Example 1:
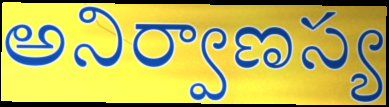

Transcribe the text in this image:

అనిర్వాణస్య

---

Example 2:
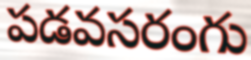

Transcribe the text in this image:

పడవసరంగు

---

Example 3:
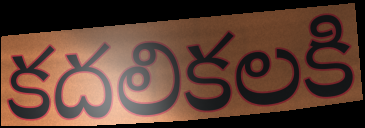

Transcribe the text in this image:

కదలికలకి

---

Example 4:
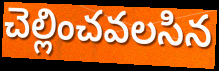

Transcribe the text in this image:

చెల్లించవలసిన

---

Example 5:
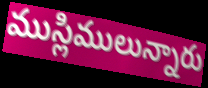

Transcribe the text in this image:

ముస్లిములున్నారు